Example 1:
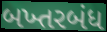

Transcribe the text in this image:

બખ્તરબંધ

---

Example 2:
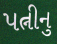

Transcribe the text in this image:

પત્નીનુ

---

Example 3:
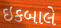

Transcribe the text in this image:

ઇકબાલે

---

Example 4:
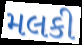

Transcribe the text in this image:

મલકી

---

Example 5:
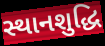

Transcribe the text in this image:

સ્થાનશુદ્ધિ